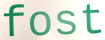
fost